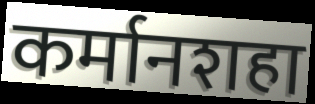
कर्मानशहा